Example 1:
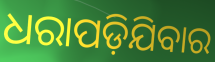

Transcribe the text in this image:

ଧରାପଡ଼ିଯିବାର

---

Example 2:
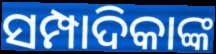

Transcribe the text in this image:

ସମ୍ପାଦିକାଙ୍କ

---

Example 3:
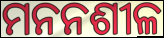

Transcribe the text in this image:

ମନନଶୀଳ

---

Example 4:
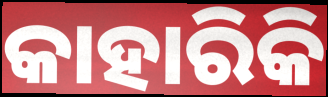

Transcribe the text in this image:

କାହାରିକି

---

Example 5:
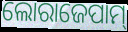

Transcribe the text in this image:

ଲୋରାଜେପାମ୍